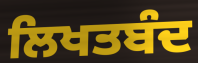
ਲਿਖਤਬੰਦ